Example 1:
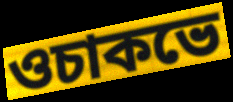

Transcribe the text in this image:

ওচাকভে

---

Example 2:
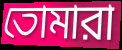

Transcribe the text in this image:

তোমারা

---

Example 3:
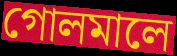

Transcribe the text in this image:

গোলমালে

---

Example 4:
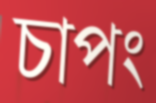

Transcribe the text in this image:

চাপং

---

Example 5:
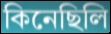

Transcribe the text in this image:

কিনেছিলি